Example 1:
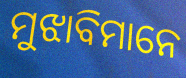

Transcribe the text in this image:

ମୁଝାବିମାନେ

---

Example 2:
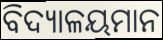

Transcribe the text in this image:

ବିଦ୍ୟାଳୟମାନ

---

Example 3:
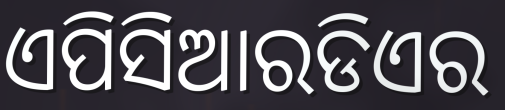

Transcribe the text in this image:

ଏପିସିଆରଡିଏର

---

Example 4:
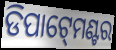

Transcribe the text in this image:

ଡିପାଟ୍‍ମେଣ୍ଟର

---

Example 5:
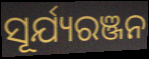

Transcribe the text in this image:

ସୂର୍ଯ୍ୟରଞ୍ଜନ